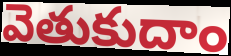
వెతుకుదాం